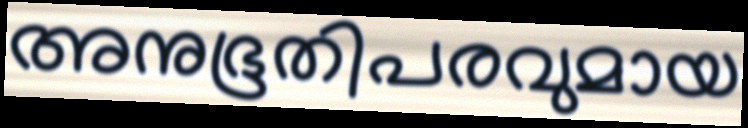
അനുഭൂതിപരവുമായ